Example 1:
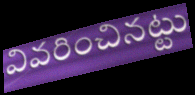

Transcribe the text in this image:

వివరించినట్టు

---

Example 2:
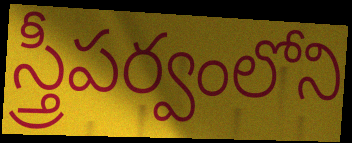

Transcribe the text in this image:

స్త్రీపర్వంలోని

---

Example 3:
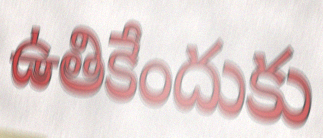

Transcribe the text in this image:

ఉతికేందుకు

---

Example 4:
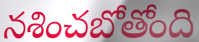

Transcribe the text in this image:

నశించబోతోంది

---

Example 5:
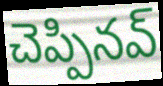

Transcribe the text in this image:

చెప్పినవ్